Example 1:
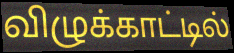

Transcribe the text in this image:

விழுக்காட்டில்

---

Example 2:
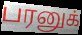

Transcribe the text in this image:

பரனுக்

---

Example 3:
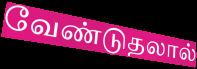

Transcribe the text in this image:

வேண்டுதலால்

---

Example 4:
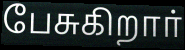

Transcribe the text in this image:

பேசுகிறார்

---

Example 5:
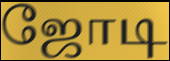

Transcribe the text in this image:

ஜோடி